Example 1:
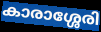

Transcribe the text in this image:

കാരാശ്ശേരി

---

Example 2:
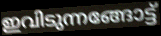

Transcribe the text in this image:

ഇവിടുന്നങ്ങോട്ട്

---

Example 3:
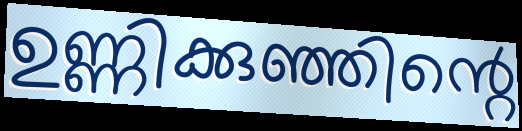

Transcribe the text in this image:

ഉണ്ണിക്കുഞ്ഞിന്റെ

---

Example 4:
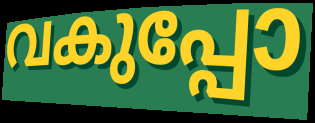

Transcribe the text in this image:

വകുപ്പോ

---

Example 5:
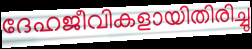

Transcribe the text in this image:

ദേഹജീവികളായിതിരിച്ചു